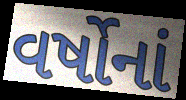
વર્ષોનાં